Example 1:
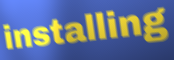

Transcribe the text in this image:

installing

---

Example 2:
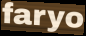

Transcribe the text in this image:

faryo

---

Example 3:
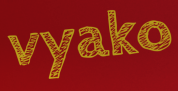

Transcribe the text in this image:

vyako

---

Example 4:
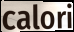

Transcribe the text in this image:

calori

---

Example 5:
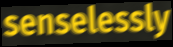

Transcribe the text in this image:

senselessly